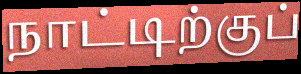
நாட்டிற்குப்